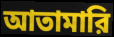
আতামারি